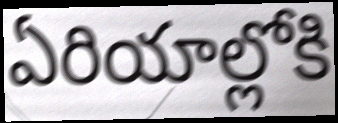
ఏరియాల్లోకి